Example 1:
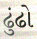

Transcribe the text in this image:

ઢુંઢો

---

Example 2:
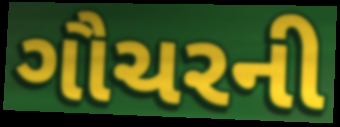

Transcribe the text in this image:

ગૌચરની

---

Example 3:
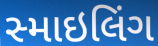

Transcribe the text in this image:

સ્માઇલિંગ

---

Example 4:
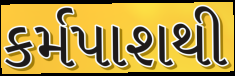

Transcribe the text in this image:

કર્મપાશથી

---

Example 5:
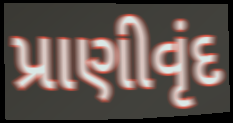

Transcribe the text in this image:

પ્રાણીવૃંદ